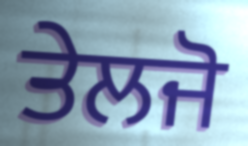
ਤੇਲਜੋ